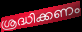
ശ്രദ്ധിക്കണം